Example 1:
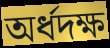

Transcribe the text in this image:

অর্ধদক্ষ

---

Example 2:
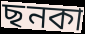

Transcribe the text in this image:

ছনকা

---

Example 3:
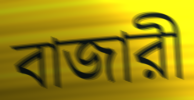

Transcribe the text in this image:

বাজারী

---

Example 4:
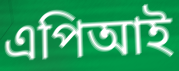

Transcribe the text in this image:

এপিআই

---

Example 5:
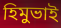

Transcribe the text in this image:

হিমুভাই